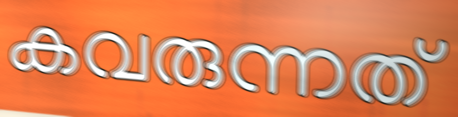
കവരുന്നത്